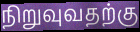
நிறுவுவதற்கு